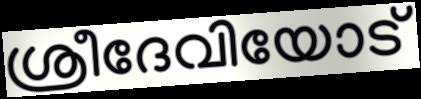
ശ്രീദേവിയോട്